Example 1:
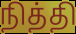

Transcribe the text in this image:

நித்தி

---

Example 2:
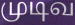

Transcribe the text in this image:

முடிவ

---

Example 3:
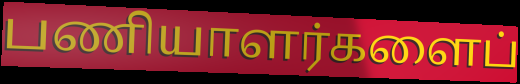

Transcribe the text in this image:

பணியாளர்களைப்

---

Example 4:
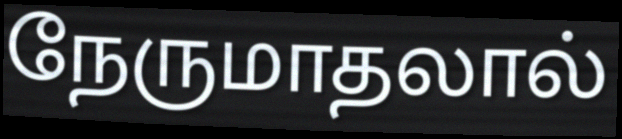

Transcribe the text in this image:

நேருமாதலால்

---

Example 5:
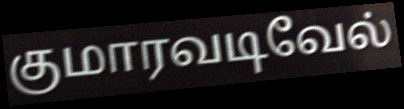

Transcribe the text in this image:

குமாரவடிவேல்